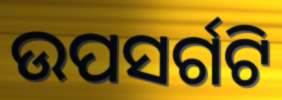
ଉପସର୍ଗଟି